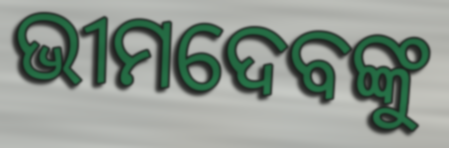
ଭୀମଦେବଙ୍କୁ